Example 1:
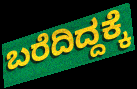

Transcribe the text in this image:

ಬರೆದಿದ್ದಕ್ಕೆ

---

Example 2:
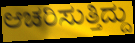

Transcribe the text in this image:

ಆಚರಿಸುತ್ತಿದ್ದು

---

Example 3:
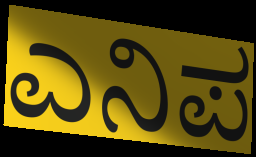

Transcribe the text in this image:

ಎನಿಪ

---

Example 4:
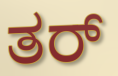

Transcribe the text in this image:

ತರ್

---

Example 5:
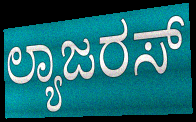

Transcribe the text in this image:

ಲ್ಯಾಜರಸ್